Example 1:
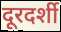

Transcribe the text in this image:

दूरदर्शी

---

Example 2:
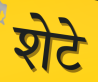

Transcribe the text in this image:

शेटे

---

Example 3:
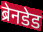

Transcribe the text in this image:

ब्रेनडेड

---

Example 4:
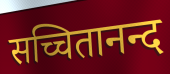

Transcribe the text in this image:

सच्चितानन्द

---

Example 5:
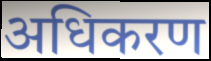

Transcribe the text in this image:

अधिकरण